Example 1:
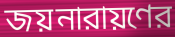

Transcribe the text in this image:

জয়নারায়ণের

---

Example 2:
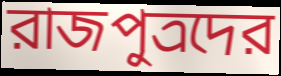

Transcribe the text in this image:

রাজপুত্রদের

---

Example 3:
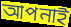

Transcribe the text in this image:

আপনাই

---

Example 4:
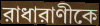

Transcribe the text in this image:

রাধারাণীকে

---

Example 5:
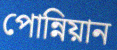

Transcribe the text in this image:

পোন্নিয়ান